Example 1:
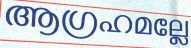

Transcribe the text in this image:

ആഗ്രഹമല്ലേ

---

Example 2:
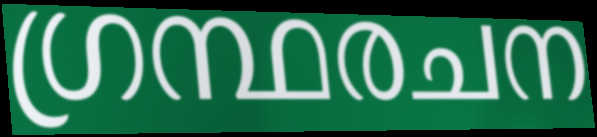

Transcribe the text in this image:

ഗ്രന്ഥരചന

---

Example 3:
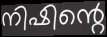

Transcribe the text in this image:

നിഷിന്റെ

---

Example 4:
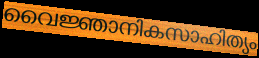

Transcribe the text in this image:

വൈജ്ഞാനികസാഹിത്യം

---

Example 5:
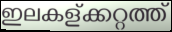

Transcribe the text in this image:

ഇലകള്ക്കറ്റത്ത്